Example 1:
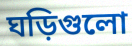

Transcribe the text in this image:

ঘড়িগুলো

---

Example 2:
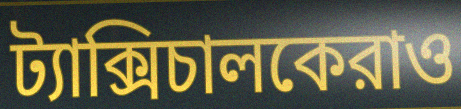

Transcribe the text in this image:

ট্যাক্সিচালকেরাও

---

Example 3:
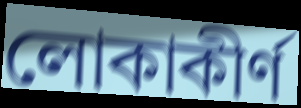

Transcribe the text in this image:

লোকাকীর্ণ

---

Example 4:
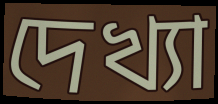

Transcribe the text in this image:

দেখ্যা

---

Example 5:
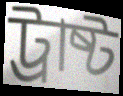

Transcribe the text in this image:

ট্রাষ্ট